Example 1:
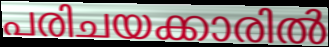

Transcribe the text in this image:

പരിചയക്കാരിൽ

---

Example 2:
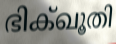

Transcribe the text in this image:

ഭിക്ഖൂതി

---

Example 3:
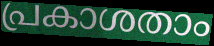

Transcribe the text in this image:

പ്രകാശതാം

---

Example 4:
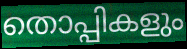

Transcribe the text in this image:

തൊപ്പികളും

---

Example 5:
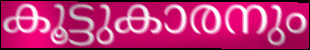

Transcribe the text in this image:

കൂട്ടുകാരനും